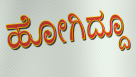
ಹೋಗಿದ್ದೂ